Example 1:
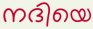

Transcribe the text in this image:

നദിയെ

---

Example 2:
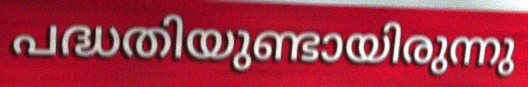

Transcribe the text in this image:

പദ്ധതിയുണ്ടായിരുന്നു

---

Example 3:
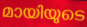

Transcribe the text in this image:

മായിയുടെ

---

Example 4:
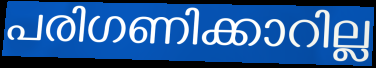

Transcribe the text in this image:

പരിഗണിക്കാറില്ല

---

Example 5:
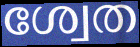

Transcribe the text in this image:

ശ്വേത